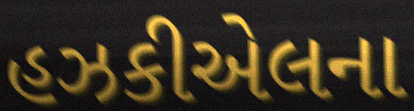
હઝકીએલના